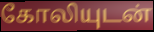
கோலியுடன்